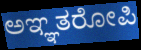
ಅಞ್ಞತರೋಪಿ